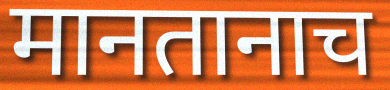
मानतानाच